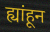
ह्यांहून